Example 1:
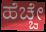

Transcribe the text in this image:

ಹೆಚ್ಚೇ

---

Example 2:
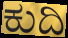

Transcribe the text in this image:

ಕುದಿ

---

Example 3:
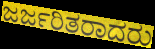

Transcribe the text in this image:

ಜರ್ಜರಿತರಾದರು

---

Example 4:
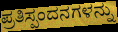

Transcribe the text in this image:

ಪ್ರತಿಸ್ಪಂದನಗಳನ್ನು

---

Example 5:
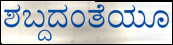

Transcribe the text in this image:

ಶಬ್ದದಂತೆಯೂ